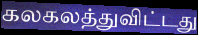
கலகலத்துவிட்டது